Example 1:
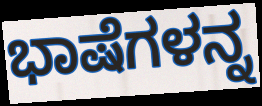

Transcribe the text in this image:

ಭಾಷೆಗಳನ್ನ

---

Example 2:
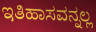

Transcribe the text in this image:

ಇತಿಹಾಸವನ್ನಲ್ಲ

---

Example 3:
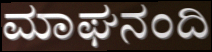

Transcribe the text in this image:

ಮಾಘನಂದಿ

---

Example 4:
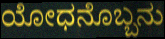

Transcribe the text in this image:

ಯೋಧನೊಬ್ಬನು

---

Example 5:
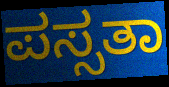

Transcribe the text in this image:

ಪಸ್ಸತಾ